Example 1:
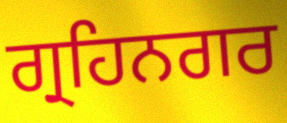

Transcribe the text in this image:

ਗ੍ਰਹਿਨਗਰ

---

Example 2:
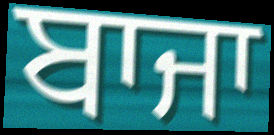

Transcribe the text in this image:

ਬਾਜਾ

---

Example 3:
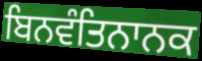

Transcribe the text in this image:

ਬਿਨਵੰਤਿਨਾਨਕ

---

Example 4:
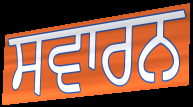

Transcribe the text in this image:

ਸਵਾਰਨ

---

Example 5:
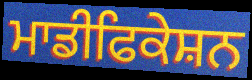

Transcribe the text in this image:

ਮਾਡੀਫਿਕੇਸ਼ਨ